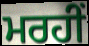
ਮਰਹੀਂ